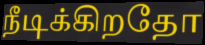
நீடிக்கிறதோ